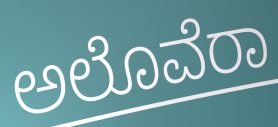
ಅಲೊವೆರಾ